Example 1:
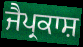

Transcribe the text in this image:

ਜੈਪ੍ਰਕਾਸ਼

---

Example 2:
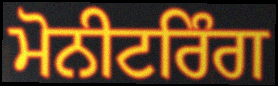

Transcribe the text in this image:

ਮੋਨੀਟਰਿੰਗ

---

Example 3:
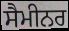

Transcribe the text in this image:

ਸੈਮੀਨਰ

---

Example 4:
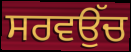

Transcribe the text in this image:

ਸਰਵਉੱਚ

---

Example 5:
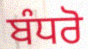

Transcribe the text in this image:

ਬੰਧਰੋ